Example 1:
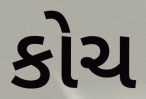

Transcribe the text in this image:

કોચ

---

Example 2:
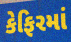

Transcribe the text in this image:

કેફિરમાં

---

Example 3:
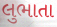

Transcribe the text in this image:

લુભાતા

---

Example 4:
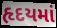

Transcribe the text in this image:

હૃદયમાં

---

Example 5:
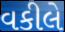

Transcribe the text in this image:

વકીલે